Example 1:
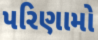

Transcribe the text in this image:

પરિણામો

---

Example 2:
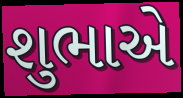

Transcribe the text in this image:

શુભાએ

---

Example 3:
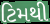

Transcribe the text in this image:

ટિમથી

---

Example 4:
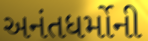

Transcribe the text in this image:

અનંતધર્મોની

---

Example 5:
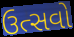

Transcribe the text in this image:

ઉત્સવો